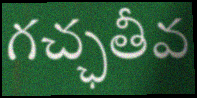
గచ్ఛతీవ